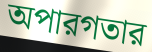
অপারগতার